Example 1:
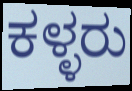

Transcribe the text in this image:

ಕಳ್ಳರು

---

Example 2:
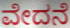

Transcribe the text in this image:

ವೇದನೆ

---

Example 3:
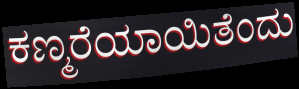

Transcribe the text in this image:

ಕಣ್ಮರೆಯಾಯಿತೆಂದು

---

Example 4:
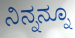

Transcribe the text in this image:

ನಿನ್ನನ್ನೂ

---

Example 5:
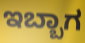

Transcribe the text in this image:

ಇಬ್ಬಾಗ